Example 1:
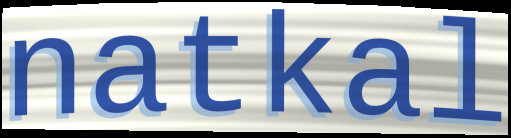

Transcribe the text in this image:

natkal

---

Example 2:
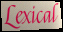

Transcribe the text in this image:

Lexical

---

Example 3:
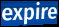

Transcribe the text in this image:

expire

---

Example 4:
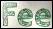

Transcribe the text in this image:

Fee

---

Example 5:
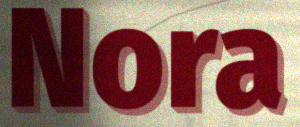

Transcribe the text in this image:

Nora